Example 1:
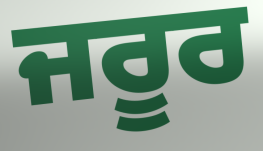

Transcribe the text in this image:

ਜਰੂਰ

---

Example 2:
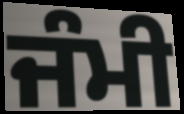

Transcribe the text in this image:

ਜੰਮੀ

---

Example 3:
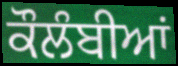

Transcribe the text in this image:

ਕੌਲੰਬੀਆਂ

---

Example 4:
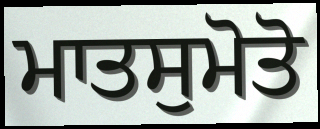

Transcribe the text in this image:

ਮਾਤਸੁਮੋਤੋ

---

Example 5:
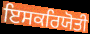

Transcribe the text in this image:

ਇਸਕਰਿਯੋਤੀ